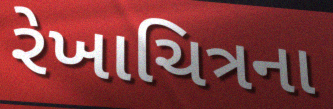
રેખાચિત્રના